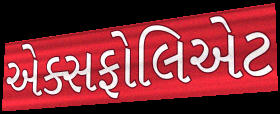
એક્સફોલિએટ